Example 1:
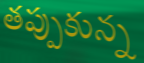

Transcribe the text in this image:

తప్పుకున్న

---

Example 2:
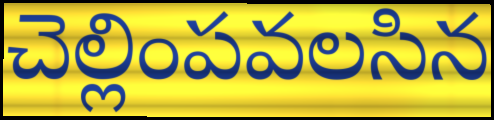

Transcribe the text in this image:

చెల్లింపవలసిన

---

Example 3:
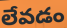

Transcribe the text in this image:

లేవడం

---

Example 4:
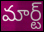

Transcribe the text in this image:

మార్ట్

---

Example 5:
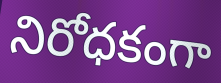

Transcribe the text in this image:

నిరోధకంగా